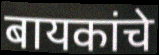
बायकांचे